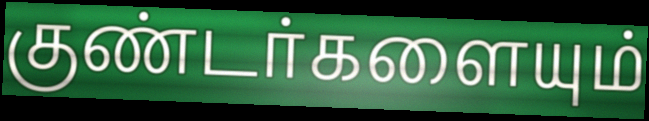
குண்டர்களையும்